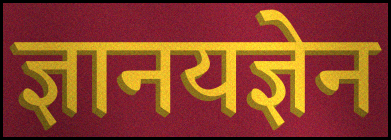
ज्ञानयज्ञेन